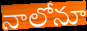
నాలోనూ